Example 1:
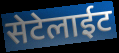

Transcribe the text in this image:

सेटेलाईट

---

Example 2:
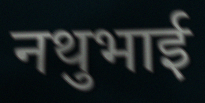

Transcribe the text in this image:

नथुभाई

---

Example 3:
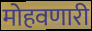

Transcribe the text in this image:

मोहवणारी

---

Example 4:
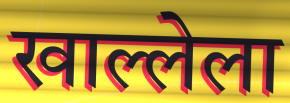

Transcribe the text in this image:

खाल्लेला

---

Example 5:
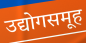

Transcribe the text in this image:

उद्योगसमूह